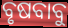
ବୃଷବାବୁ